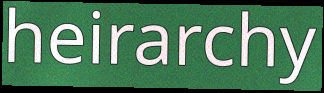
heirarchy